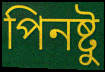
পিনষ্টু